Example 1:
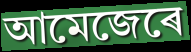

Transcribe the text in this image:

আমেজেৰে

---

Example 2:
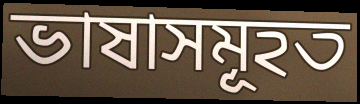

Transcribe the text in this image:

ভাষাসমূহত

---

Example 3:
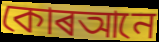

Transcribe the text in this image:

কোৰআনে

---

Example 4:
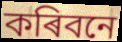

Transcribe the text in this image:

কৰিবনে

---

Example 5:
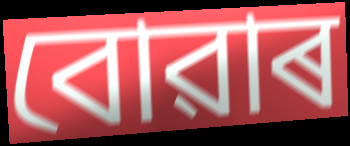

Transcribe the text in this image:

বোৱাৰ